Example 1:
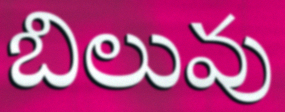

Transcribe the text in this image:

బిలువు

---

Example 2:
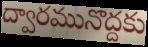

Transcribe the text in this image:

ద్వారమునొద్దకు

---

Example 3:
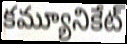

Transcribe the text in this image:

కమ్యూనికేట్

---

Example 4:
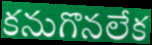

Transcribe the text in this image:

కనుగొనలేక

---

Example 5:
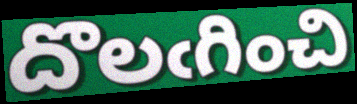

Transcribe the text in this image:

దొలఁగించి